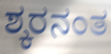
ಶ್ಕರನಂತ